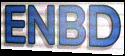
ENBD